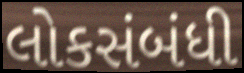
લોકસંબંધી